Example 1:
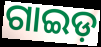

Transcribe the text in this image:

ଗାଇଡ଼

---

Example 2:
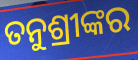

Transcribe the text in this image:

ତନୁଶ୍ରୀଙ୍କର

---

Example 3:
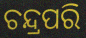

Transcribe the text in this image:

ଚନ୍ଦ୍ରପରି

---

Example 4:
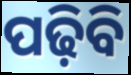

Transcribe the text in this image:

ପଢ଼ିବି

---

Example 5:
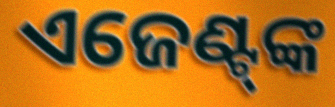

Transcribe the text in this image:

ଏଜେଣ୍ଟ୍‍ଙ୍କ